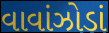
વાવાંઝોડાં